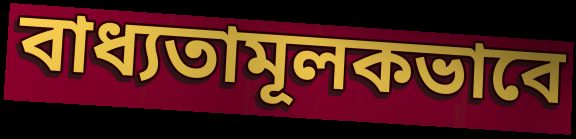
বাধ্যতামূলকভাবে